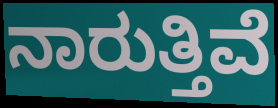
ನಾರುತ್ತಿವೆ